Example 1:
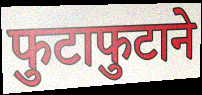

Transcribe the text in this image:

फुटाफुटाने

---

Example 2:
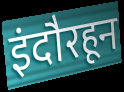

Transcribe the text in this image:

इंदौरहून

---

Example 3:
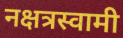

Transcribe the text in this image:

नक्षत्रस्वामी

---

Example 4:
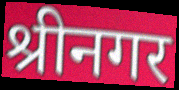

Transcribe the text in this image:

श्रीनगर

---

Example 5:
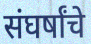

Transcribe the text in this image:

संघर्षांचे